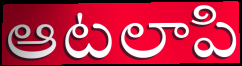
ఆటలాపి